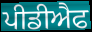
ਪੀਡੀਐਫ